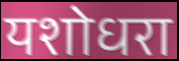
यशोधरा